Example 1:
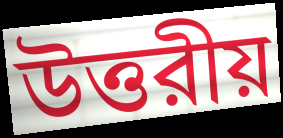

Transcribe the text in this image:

উত্তরীয়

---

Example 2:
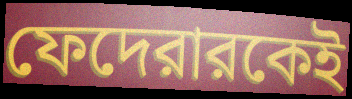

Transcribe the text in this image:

ফেদেরারকেই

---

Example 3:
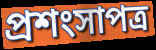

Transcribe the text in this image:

প্রশংসাপত্র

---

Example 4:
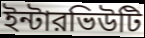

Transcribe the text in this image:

ইন্টারভিউটি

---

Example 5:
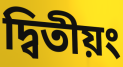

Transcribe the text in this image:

দ্বিতীয়ং